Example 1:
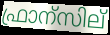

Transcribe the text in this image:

ഫ്രാന്സില്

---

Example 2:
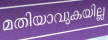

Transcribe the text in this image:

മതിയാവുകയില്ല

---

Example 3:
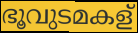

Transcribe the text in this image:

ഭൂവുടമകള്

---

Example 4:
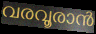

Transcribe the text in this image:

വരവൂരാൻ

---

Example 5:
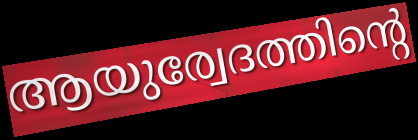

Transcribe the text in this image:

ആയുര്വേദത്തിന്റെ